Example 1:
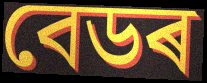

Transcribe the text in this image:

বেডৰ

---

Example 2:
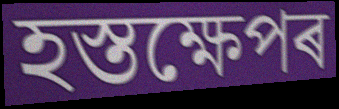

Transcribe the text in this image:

হস্তক্ষেপৰ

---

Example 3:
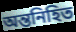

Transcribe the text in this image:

অন্তনিহিত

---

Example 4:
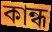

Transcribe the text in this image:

কান্ধ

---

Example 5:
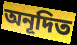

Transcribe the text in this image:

অনূদিত